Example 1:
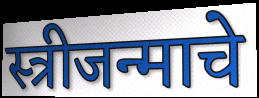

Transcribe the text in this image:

स्त्रीजन्माचे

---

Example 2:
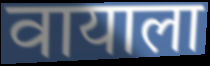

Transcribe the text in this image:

वायाला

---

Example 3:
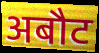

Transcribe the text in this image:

अबौट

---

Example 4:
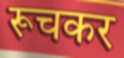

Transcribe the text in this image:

रूचकर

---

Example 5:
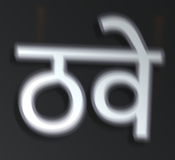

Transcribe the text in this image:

ठवे